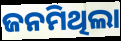
ଜନମିଥିଲା